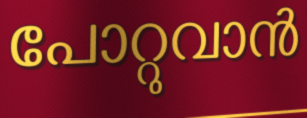
പോറ്റുവാൻ